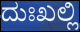
ದುಃಖಲ್ಲಿ